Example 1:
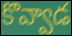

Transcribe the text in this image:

కొవ్వాడ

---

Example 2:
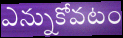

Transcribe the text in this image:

ఎన్నుకోవటం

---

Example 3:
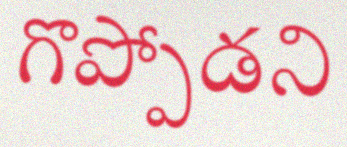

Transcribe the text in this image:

గొప్పోడని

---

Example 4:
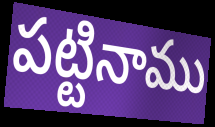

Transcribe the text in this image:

పట్టినాము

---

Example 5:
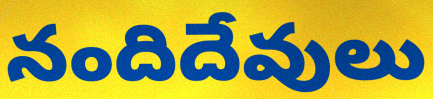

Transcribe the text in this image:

నందిదేవులు